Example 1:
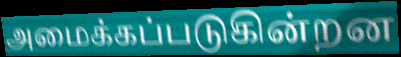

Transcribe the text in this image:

அமைக்கப்படுகின்றன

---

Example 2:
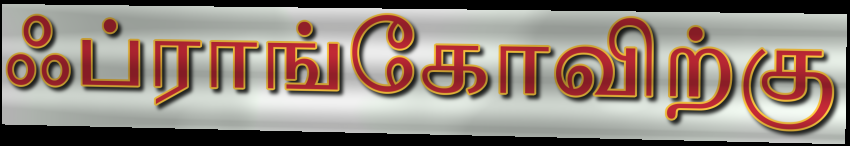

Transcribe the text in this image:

ஃப்ராங்கோவிற்கு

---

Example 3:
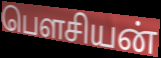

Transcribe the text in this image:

பௌசியன்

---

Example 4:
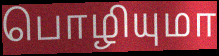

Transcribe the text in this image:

பொழியுமா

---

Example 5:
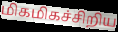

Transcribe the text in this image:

மிகமிகச்சிறிய